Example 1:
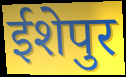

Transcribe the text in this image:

ईशेपुर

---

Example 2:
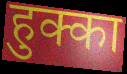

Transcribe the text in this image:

हुक्का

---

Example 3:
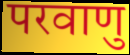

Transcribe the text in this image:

परवाणु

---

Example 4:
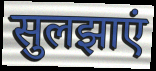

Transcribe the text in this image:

सुलझाएं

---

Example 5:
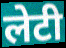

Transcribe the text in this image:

लेटी